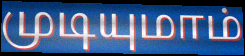
முடியுமாம்